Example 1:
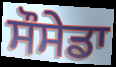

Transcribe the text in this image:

ਸੌਸੇਡਾ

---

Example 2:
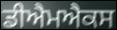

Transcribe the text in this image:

ਡੀਐਮਐਕਸ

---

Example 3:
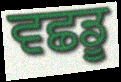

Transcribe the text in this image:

ਵਛਡੂ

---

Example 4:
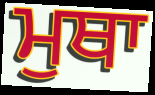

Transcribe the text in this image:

ਮੁਥਾ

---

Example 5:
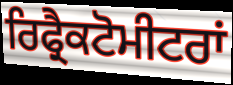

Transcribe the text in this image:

ਰਿਫ੍ਰੈਕਟੋਮੀਟਰਾਂ